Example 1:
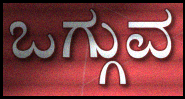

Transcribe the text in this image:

ಒಗ್ಗುವ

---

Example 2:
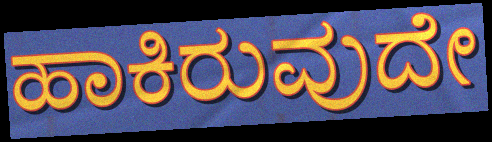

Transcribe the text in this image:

ಹಾಕಿರುವುದೇ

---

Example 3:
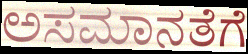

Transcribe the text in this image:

ಅಸಮಾನತೆಗೆ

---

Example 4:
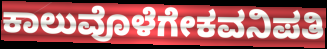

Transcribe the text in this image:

ಕಾಲುವೊಳೆಗೇಕವನಿಪತಿ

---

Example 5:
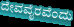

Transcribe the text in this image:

ದೇವವೈರವೆಂದು